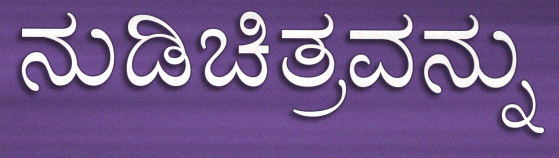
ನುಡಿಚಿತ್ರವನ್ನು